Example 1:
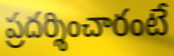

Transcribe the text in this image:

ప్రదర్శించారంటే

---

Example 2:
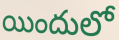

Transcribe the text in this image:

యిందులో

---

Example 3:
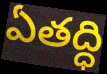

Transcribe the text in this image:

ఏతద్ధి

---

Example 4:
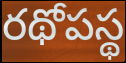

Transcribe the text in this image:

రథోపస్థ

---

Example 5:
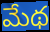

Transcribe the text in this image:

మేథ